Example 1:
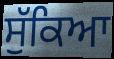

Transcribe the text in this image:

ਸੁੱਕਿਆ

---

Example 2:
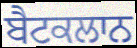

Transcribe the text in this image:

ਬੈਟਕਲਾਨ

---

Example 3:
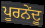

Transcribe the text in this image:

ਪੂਰਨੇਂਦੂ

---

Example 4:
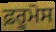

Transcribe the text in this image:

ਫ਼ਰੂਮੋਸ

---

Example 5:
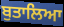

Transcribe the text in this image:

ਬੁਤਾਲਿਆ